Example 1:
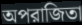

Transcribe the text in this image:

অপরাজিতা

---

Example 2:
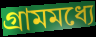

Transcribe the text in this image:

গ্রামমধ্যে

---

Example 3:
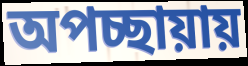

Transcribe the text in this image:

অপচ্ছায়ায়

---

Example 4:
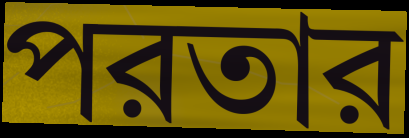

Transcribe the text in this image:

পরতার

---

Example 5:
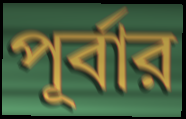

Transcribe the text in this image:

পূর্বার